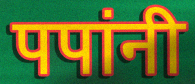
पपांनी